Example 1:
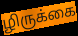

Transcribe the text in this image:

ழிருக்கை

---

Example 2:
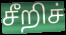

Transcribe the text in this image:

சீறிச்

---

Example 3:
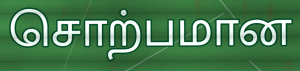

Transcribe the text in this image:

சொற்பமான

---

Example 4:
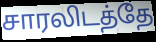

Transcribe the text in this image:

சாரலிடத்தே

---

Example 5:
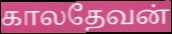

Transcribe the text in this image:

காலதேவன்